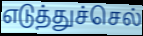
எடுத்துச்செல்